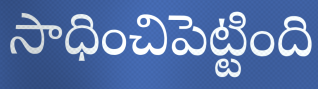
సాధించిపెట్టింది